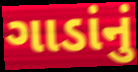
ગાડાંનું